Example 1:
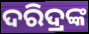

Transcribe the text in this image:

ଦରିଦ୍ରଙ୍କ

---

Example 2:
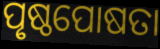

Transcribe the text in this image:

ପୃଷ୍ଠପୋଷତା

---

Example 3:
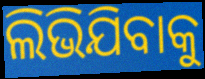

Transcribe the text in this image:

ଲିଭିଯିବାକୁ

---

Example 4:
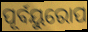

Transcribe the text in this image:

ପୂର୍ବୟୁରୋପ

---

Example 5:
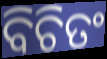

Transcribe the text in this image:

ବିଚିତଂ